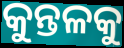
କୁନ୍ତଳକୁ